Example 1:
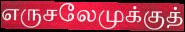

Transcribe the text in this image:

எருசலேமுக்குத்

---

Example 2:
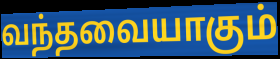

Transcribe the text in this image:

வந்தவையாகும்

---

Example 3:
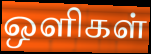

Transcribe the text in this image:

ஒளிகள்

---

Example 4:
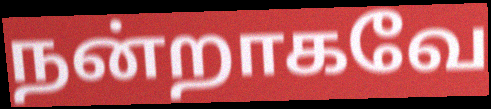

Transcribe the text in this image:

நன்றாகவே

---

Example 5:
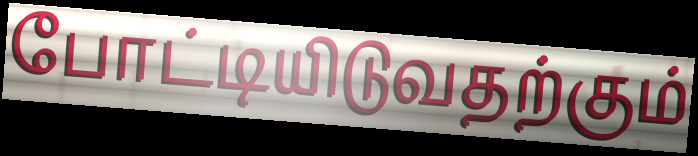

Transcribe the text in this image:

போட்டியிடுவதற்கும்